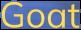
Goat